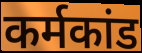
कर्मकांड